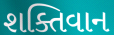
શક્તિવાન